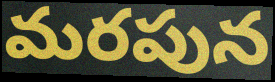
మరపున